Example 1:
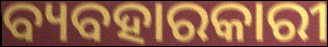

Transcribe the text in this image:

ବ୍ୟବହାରକାରୀ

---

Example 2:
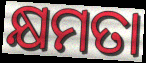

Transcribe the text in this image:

କ୍ଷମତା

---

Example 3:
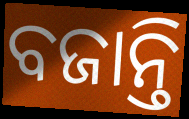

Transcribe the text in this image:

ବଜାନ୍ତି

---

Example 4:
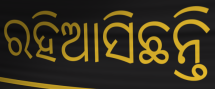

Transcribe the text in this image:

ରହିଆସିଛନ୍ତି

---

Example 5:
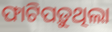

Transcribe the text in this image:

ଫାଟିପଡ଼ୁଥିଲା